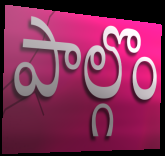
పాల్గొం